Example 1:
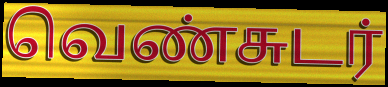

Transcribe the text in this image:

வெண்சுடர்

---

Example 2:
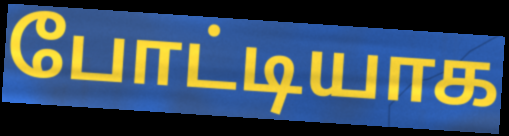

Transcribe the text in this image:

போட்டியாக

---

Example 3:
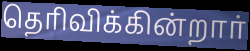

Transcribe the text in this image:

தெரிவிக்கின்றார்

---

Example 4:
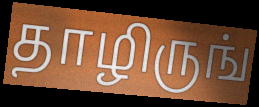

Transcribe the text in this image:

தாழிருங்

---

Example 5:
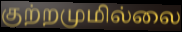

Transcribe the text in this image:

குற்றமுமில்லை